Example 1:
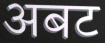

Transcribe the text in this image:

अबट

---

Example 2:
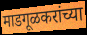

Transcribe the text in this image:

माडगूळकरांच्या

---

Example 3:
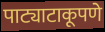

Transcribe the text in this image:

पाट्याटाकूपणे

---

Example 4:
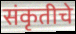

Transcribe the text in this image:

संकृतीचे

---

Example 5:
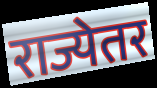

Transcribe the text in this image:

राज्येतर